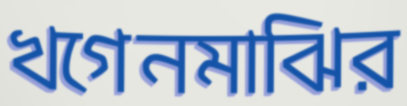
খগেনমাঝির